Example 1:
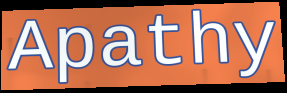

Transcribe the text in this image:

Apathy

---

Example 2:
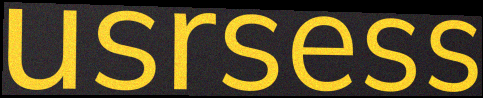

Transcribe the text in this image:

usrsess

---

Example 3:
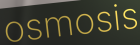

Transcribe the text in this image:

osmosis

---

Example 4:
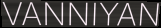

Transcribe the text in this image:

VANNIYAN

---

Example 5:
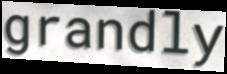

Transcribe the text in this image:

grandly